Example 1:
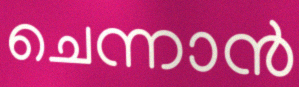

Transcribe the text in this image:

ചെന്നാൻ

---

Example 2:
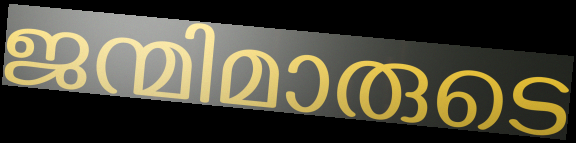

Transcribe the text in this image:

ജന്മിമാരുടെ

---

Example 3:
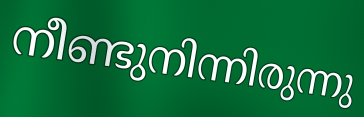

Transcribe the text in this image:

നീണ്ടുനിന്നിരുന്നു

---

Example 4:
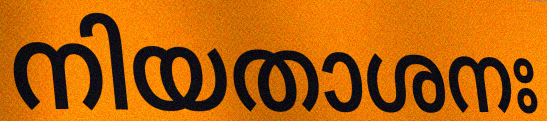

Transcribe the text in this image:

നിയതാശനഃ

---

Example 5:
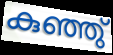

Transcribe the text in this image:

കുഞ്ഞു്